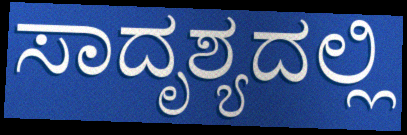
ಸಾದೃಶ್ಯದಲ್ಲಿ